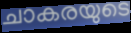
ചാകരയുടെ